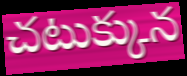
చటుక్కున